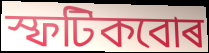
স্ফটিকবোৰ